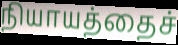
நியாயத்தைச்